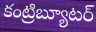
కంట్రిబ్యూటర్